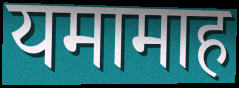
यमामाह